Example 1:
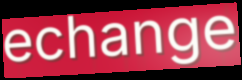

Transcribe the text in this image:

echange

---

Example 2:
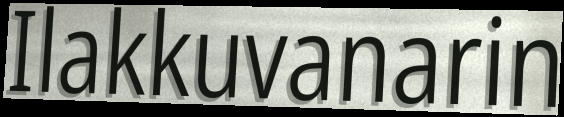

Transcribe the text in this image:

Ilakkuvanarin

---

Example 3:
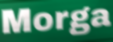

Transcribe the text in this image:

Morga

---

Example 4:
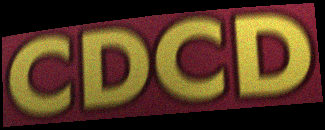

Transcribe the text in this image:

CDCD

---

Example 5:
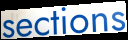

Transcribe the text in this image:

sections